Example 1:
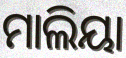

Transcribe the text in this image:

ମାଲିୟା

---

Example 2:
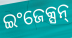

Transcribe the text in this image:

ଇଂଜେକ୍ସନ୍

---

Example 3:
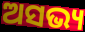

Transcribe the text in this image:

ଅସଭ୍ୟ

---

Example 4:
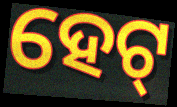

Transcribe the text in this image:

ହେଟ୍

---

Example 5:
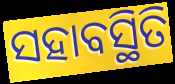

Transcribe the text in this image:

ସହାବସ୍ଥିତି